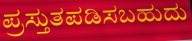
ಪ್ರಸ್ತುತಪಡಿಸಬಹುದು